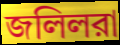
জলিলরা